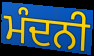
ਮੰਦਨੀ